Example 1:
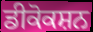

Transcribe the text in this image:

ਡੀਕੋਕਸ਼ਨ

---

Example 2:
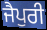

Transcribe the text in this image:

ਜੈਪੁਰੀ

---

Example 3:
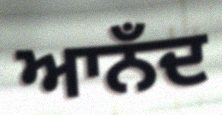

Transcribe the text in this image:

ਆਨਁਦ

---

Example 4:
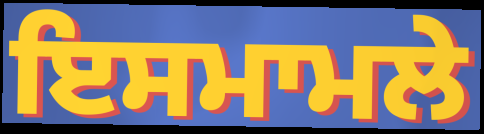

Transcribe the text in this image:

ਇਸਮਾਮਲੇ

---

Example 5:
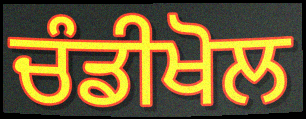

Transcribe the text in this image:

ਚੰਡੀਖੋਲ